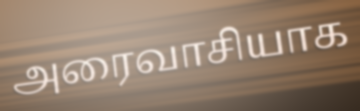
அரைவாசியாக